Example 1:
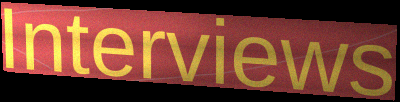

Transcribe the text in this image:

Interviews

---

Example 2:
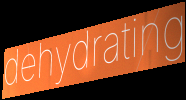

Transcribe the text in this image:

dehydrating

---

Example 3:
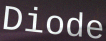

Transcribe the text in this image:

Diode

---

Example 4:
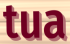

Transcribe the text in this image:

tua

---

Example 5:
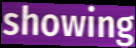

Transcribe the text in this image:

showing